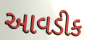
આવડીક